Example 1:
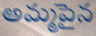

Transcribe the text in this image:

అమ్మపైన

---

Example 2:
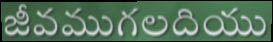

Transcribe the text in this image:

జీవముగలదియు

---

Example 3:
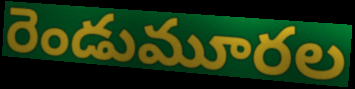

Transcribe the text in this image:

రెండుమూరల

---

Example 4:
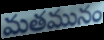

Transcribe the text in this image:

మతమునం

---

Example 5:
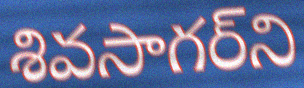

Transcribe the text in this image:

శివసాగర్‌ని